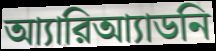
আ্যারিআ্যাডনি